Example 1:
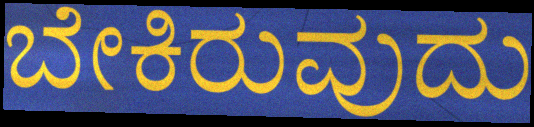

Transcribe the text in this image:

ಬೇಕಿರುವುದು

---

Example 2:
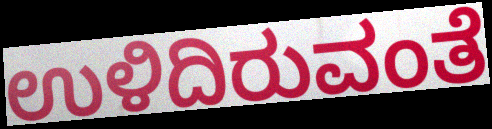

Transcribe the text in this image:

ಉಳಿದಿರುವಂತೆ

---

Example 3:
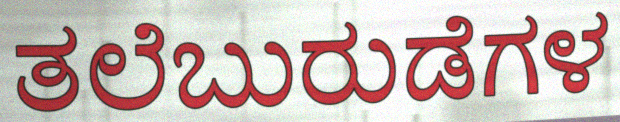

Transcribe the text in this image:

ತಲೆಬುರುಡೆಗಳ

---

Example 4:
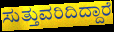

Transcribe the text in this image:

ಸುತ್ತುವರಿದಿದ್ದಾರೆ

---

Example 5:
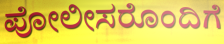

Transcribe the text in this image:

ಪೋಲೀಸರೊಂದಿಗೆ